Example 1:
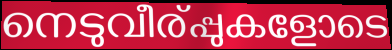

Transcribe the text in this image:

നെടുവീര്പ്പുകളോടെ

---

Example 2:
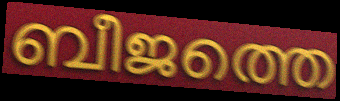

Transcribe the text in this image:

ബീജത്തെ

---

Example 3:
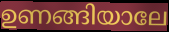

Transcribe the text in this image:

ഉണങ്ങിയാലേ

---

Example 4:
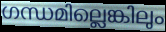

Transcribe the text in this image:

ഗന്ധമില്ലെങ്കിലും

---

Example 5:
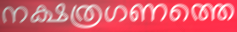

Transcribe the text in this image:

നക്ഷത്രഗണത്തെ